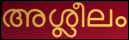
അശ്ലീലം